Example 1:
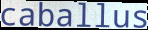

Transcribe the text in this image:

caballus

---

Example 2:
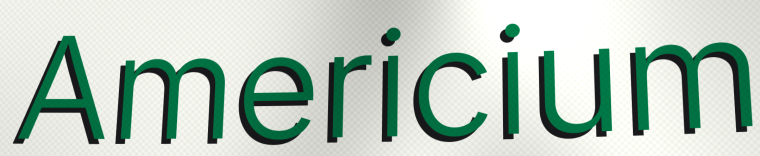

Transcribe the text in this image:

Americium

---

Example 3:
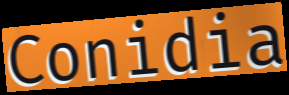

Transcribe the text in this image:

Conidia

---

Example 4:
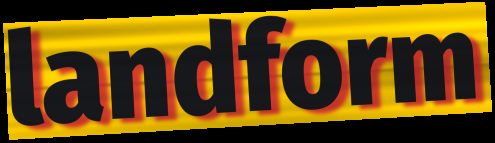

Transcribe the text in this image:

landform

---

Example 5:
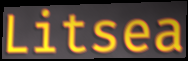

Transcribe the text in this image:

Litsea